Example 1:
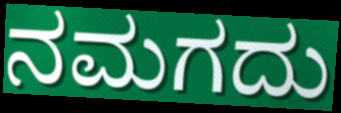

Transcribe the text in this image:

ನಮಗದು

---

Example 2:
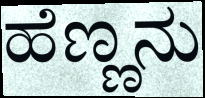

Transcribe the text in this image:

ಹೆಣ್ಣನು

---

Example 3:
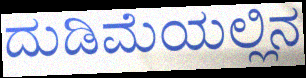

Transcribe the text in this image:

ದುಡಿಮೆಯಲ್ಲಿನ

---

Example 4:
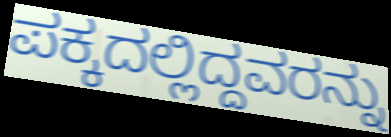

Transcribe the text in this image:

ಪಕ್ಕದಲ್ಲಿದ್ದವರನ್ನು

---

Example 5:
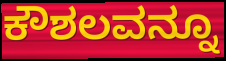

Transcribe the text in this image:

ಕೌಶಲವನ್ನೂ